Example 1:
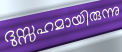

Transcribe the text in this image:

ദുസ്സഹമായിരുന്നു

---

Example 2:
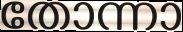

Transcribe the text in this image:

തോന്നാ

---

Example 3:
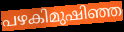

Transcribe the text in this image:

പഴകിമുഷിഞ്ഞ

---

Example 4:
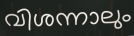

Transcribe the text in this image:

വിശന്നാലും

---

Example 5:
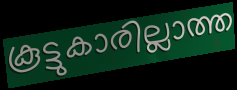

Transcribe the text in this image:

കൂട്ടുകാരില്ലാത്ത